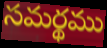
సమర్థము